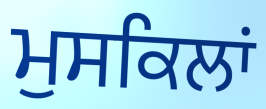
ਮੁਸਕਿਲਾਂ